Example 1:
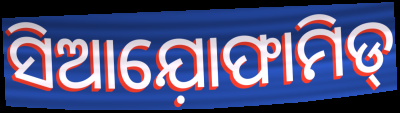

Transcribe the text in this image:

ସିଆଯ଼ୋଫାମିଡ୍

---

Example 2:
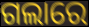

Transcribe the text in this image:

ଗଲାରେ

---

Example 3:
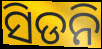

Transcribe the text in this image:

ସିଡନି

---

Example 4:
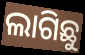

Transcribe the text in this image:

ଲାଗିଛୁ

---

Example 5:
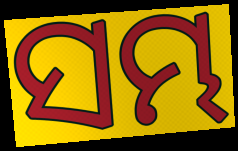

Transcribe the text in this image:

ସମ୍ଭ